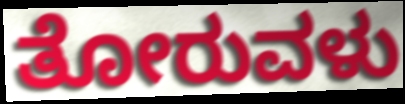
ತೋರುವಳು